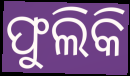
ଫୁଲିକି